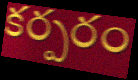
కర్పరం